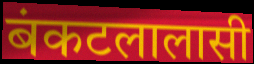
बंकटलालासी